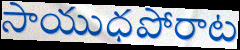
సాయుధపోరాట